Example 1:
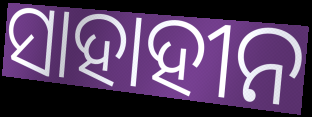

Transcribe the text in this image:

ସାହାହୀନ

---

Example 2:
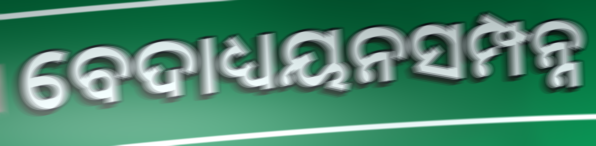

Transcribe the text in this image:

ବେଦାଧ୍ୟୟନସମ୍ପନ୍ନ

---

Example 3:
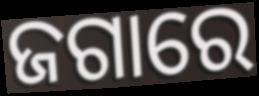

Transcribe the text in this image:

ଜଗାରେ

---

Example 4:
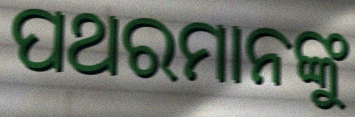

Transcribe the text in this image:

ପଥରମାନଙ୍କୁ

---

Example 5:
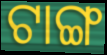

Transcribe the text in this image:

ଟାଙ୍ଗ